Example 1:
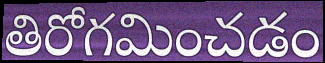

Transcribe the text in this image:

తిరోగమించడం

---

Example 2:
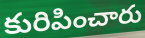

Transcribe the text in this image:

కురిపించారు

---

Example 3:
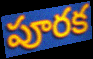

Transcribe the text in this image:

పూరక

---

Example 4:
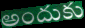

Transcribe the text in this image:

అందుకు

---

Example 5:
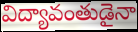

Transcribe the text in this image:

విద్యావంతుడైనా